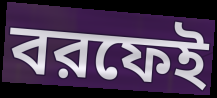
বরফেই